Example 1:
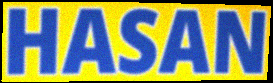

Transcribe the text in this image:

HASAN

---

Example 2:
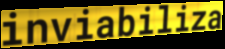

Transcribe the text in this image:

inviabiliza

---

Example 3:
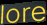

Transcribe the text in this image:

lore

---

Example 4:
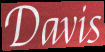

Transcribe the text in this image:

Davis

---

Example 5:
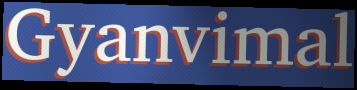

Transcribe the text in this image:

Gyanvimal